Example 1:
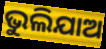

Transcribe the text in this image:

ଭୁଲିଯାଅ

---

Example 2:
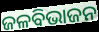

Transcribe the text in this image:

ଜଳବିଭାଜନ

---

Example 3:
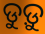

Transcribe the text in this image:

ଡୁଡ଼ୁ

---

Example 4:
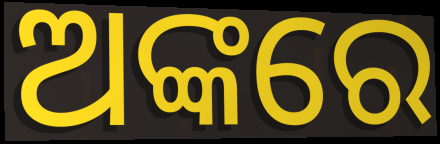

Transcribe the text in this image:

ଅଙ୍କରେ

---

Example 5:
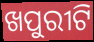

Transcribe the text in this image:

ଖପୁରୀଟି